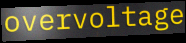
overvoltage